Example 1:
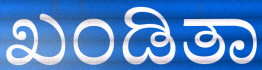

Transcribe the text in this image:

ಖಂಡಿತಾ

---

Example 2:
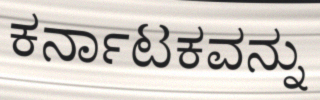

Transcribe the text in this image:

ಕರ್ನಾಟಕವನ್ನು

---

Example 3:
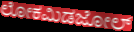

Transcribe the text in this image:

ಲೋಕಮಿಡಜೋಲ್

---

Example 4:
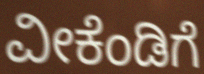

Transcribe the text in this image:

ವೀಕೆಂಡಿಗೆ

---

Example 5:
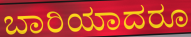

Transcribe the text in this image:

ಬಾರಿಯಾದರೂ